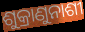
ଶୁକ୍ରାଣୁନାଶୀ